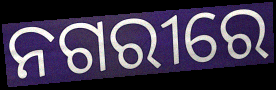
ନଗରୀରେ